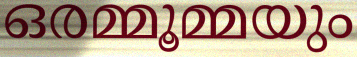
ഒരമ്മൂമ്മയും